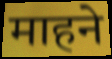
माहने